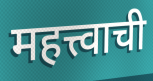
महत्त्वाची